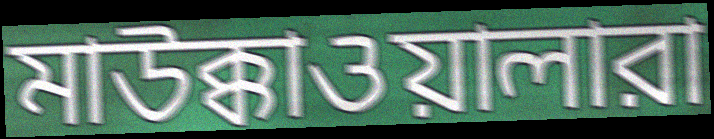
মাউক্কাওয়ালারা